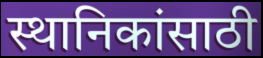
स्थानिकांसाठी